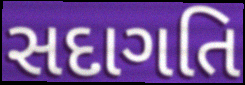
સદાગતિ